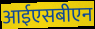
आईएसबीएन